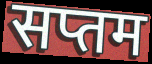
सप्तम